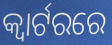
କ୍ବାର୍ଟରରେ